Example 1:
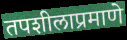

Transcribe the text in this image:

तपशीलाप्रमाणे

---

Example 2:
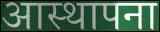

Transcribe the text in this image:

आस्थापना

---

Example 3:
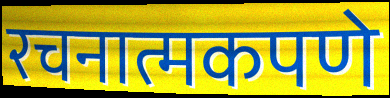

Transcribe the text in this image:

रचनात्मकपणे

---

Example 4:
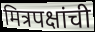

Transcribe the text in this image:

मित्रपक्षांची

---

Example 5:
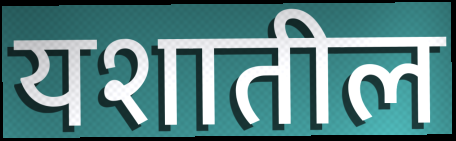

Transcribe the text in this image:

यशातील